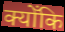
क्योँकि